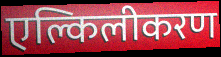
एल्किलीकरण